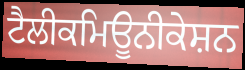
ਟੈਲੀਕਮਿਊਨੀਕੇਸ਼ਨ